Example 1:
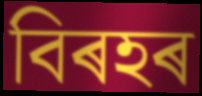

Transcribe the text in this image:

বিৰহৰ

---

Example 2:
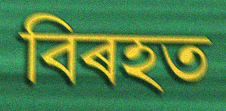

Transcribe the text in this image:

বিৰহত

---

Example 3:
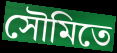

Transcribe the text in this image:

সৌমিতে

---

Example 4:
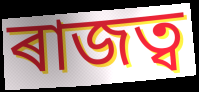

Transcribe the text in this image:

ৰাজত্ব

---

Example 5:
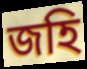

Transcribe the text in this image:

জহি